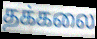
தக்கலை